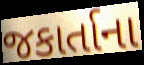
જકાર્તાના